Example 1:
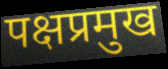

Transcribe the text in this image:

पक्षप्रमुख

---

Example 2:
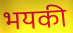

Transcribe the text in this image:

भयकी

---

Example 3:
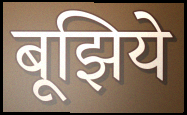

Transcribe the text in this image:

बूझिये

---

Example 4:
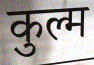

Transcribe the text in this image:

कुल्म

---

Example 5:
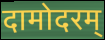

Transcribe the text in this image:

दामोदरम्